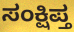
ಸಂಕ್ಷಿಪ್ತ